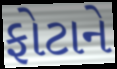
ફોટાને